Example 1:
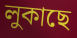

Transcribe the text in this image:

লুকাছে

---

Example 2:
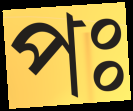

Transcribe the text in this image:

পঃ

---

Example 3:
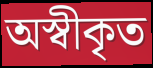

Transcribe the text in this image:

অস্বীকৃত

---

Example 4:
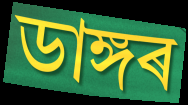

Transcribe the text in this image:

ডাঙ্গৰ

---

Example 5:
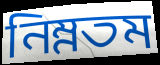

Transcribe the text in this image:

নিম্নতম